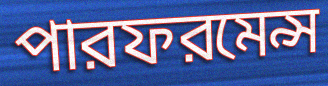
পারফরমেন্স